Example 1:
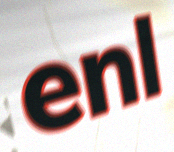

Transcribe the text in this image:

enl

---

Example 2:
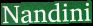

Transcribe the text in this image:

Nandini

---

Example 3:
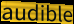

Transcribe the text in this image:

audible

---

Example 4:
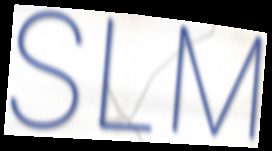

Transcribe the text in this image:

SLM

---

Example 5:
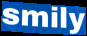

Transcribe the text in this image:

smily